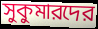
সুকুমারদের